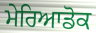
ਮੇਰਿਆਡੋਕ